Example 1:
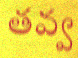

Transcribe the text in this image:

తవ్వ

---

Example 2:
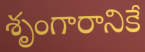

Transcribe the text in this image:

శృంగారానికే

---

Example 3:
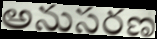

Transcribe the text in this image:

అనుసరణ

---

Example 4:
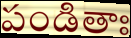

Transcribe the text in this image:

పండితాః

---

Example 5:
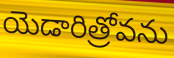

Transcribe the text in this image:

యెడారిత్రోవను